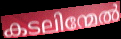
കടലിന്മേൽ